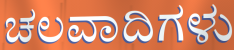
ಚಲವಾದಿಗಳು